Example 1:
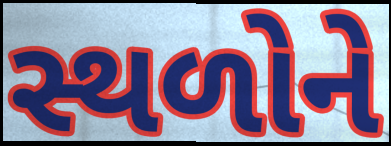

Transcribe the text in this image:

સ્થળોને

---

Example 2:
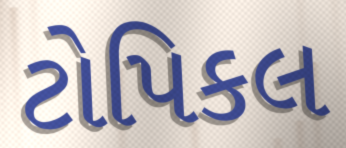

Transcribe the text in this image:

ટોપિકલ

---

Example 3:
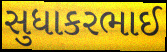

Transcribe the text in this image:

સુધાકરભાઈ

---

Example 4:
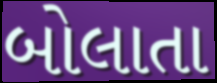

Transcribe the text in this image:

બોલાતા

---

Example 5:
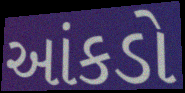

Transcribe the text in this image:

આંકડો